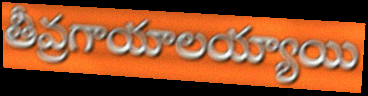
తీవ్రగాయాలయ్యాయి